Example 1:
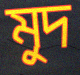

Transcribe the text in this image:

মুদ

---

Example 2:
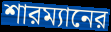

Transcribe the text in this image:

শারম্যানের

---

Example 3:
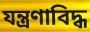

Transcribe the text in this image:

যন্ত্রণাবিদ্ধ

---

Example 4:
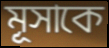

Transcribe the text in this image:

মূসাকে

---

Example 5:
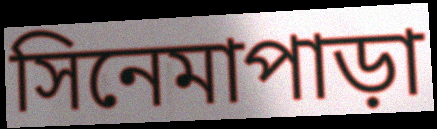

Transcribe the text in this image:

সিনেমাপাড়া